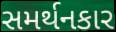
સમર્થનકાર